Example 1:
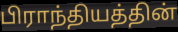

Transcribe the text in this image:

பிராந்தியத்தின்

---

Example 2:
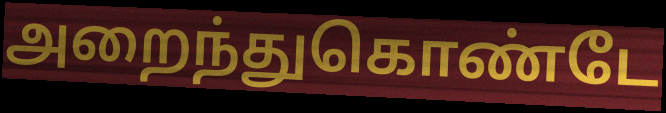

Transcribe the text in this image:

அறைந்துகொண்டே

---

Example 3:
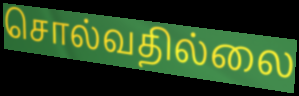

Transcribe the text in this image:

சொல்வதில்லை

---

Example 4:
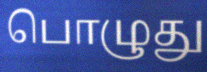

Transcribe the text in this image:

பொழுது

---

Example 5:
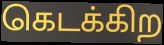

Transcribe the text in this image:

கெடக்கிற